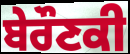
ਬੇਰੌਣਕੀ